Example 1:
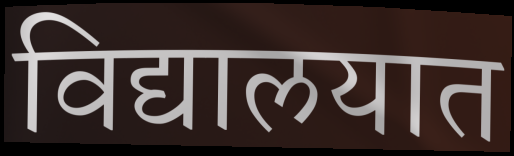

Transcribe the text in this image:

विद्यालयात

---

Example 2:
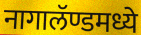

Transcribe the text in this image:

नागालॅण्डमध्ये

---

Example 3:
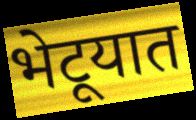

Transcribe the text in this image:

भेटूयात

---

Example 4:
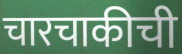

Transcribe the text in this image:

चारचाकीची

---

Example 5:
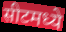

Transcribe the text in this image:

सीटमध्ये